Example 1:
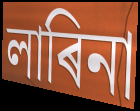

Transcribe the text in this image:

লাৰিনা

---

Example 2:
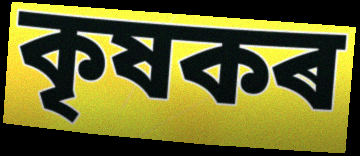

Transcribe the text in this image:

কৃষকৰ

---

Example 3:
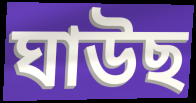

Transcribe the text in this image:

ঘাউছ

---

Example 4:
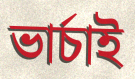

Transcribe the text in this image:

ভাৰ্চাই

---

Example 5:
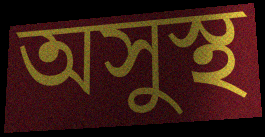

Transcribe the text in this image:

অসুস্থ